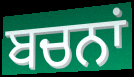
ਬਚਨਾਂ